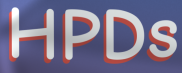
HPDs